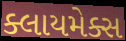
ક્લાયમેક્સ